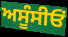
ਅਸੂੰਸੀਓਂ